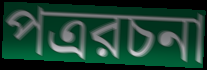
পত্ররচনা